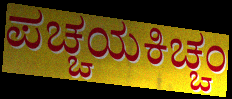
ಪಚ್ಚಯಕಿಚ್ಚಂ